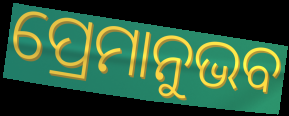
ପ୍ରେମାନୁଭବ